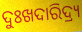
ଦୁଃଖଦାରିଦ୍ର୍ୟ